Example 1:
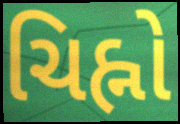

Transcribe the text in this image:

ચિહ્નો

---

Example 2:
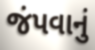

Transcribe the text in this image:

જંપવાનું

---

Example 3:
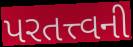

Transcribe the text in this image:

પરતત્ત્વની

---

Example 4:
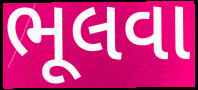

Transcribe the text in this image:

ભૂલવા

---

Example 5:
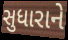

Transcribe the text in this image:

સુધારાને